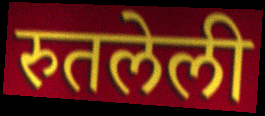
रुतलेली